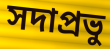
সদাপ্রভু